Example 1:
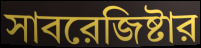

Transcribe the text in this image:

সাবরেজিষ্টার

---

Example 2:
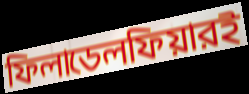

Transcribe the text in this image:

ফিলাডেলফিয়ারই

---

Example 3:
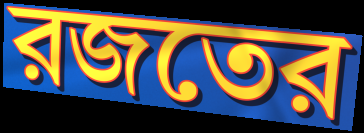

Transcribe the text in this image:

রজতের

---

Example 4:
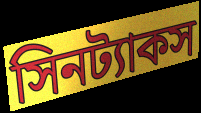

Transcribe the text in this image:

সিনট্যাকস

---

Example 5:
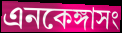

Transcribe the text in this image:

এনকেঙ্গাসং